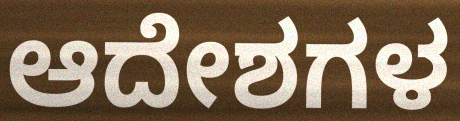
ಆದೇಶಗಳ